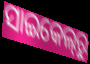
ସାଇକେଲ୍‌ରୁ